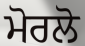
ਮੋਰਲੋ